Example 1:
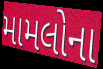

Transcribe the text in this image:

મામલોના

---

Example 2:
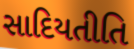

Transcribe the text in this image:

સાદિયતીતિ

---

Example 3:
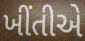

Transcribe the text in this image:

ખીંતીએ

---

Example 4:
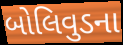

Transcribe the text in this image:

બોલિવુડના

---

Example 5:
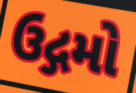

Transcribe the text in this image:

ઉદ્ગમો